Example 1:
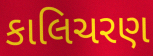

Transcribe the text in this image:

કાલિચરણ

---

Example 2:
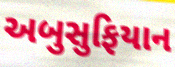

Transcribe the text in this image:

અબુસુફિયાન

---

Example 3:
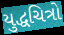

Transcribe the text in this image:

યુદ્ધચિત્રો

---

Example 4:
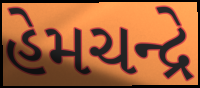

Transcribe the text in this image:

હેમચન્દ્રે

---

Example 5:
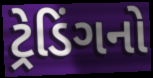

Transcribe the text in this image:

ટ્રેડિંગનો